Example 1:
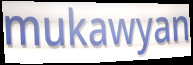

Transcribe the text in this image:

mukawyan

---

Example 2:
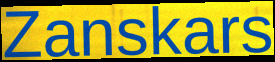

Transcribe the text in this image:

Zanskars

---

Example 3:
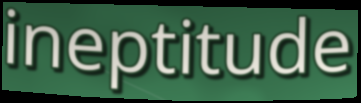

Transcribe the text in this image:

ineptitude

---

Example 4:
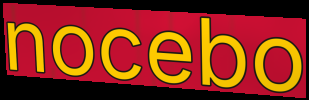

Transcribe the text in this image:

nocebo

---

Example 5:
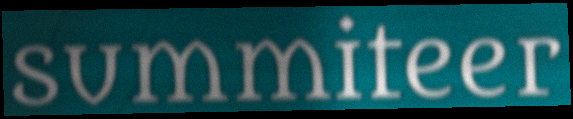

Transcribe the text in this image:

summiteer